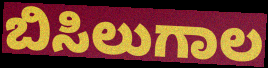
ಬಿಸಿಲುಗಾಲ